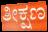
ತೀಕ್ಷಣ